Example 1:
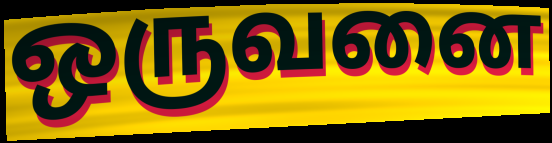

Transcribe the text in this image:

ஒருவனை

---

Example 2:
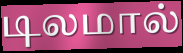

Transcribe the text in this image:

டிலமால்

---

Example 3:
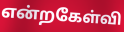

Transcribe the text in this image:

என்றகேள்வி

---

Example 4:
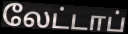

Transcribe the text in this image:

லேட்டாப்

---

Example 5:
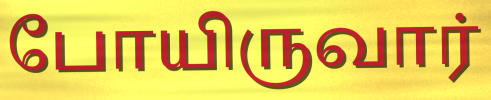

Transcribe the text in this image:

போயிருவார்